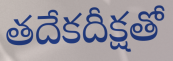
తదేకదీక్షతో